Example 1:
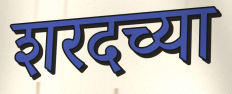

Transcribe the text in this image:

शरदच्या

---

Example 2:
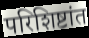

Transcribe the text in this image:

परिशिष्टांत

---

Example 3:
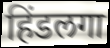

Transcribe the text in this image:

हिंडलगा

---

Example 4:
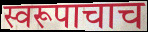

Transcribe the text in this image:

स्वरूपाचाच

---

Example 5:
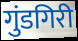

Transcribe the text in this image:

गुंडगिरी